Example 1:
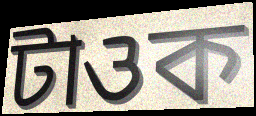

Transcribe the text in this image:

টাওক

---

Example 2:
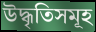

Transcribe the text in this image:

উদ্ধৃতিসমূহ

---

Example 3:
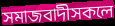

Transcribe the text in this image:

সমাজবাদীসকলে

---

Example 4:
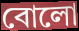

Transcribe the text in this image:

বোলো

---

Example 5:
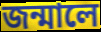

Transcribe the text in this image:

জন্মালে